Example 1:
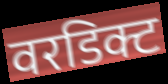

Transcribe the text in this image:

वरडिक्ट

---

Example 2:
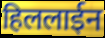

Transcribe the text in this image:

हिललाईन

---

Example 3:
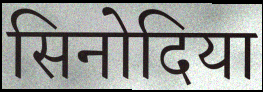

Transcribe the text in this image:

सिनोदिया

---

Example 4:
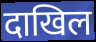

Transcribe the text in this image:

दाखिल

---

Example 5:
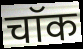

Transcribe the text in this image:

चॉक